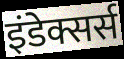
इंडेक्सर्स